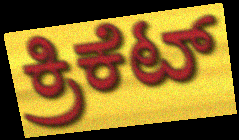
ಕ್ರಿಕೆಟ್